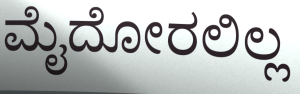
ಮೈದೋರಲಿಲ್ಲ